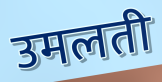
उमलती